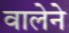
वालेने